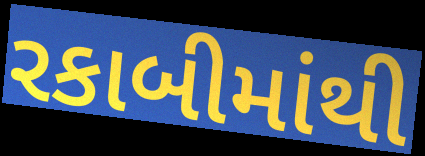
રકાબીમાંથી